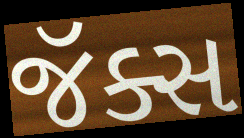
જૅક્સ